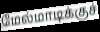
மேல்மாடிக்குச்